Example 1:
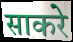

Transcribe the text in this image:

साकरे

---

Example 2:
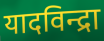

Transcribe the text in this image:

यादविन्द्रा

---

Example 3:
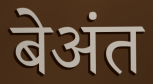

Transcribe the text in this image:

बेअंत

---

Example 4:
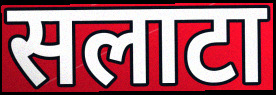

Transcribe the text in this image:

सलाटा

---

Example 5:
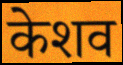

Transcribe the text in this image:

केशव